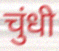
चुंधी